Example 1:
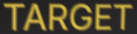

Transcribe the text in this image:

TARGET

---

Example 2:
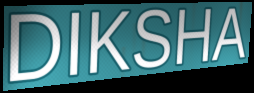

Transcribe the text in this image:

DIKSHA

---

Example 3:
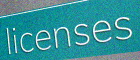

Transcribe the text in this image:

licenses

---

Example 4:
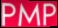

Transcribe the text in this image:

PMP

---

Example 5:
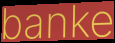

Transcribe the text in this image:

banke